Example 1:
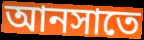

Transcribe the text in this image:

আনসাতে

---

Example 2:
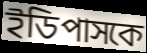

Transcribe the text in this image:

ইডিপাসকে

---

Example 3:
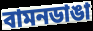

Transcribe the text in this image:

বামনডাঙা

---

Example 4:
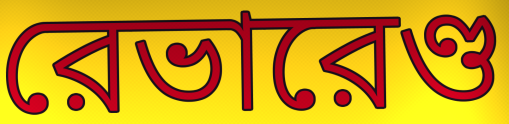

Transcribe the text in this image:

রেভারেণ্ড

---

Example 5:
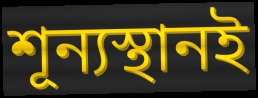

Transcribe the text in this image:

শূন্যস্থানই